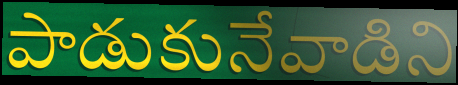
పాడుకునేవాడిని